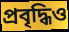
প্রবৃদ্ধিও